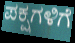
ಪಕ್ಷಗಳಿಗೆ